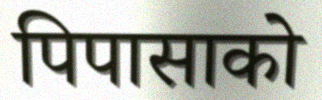
पिपासाको